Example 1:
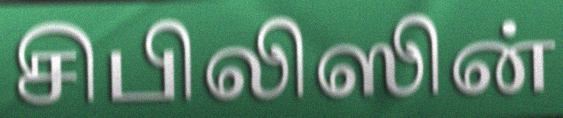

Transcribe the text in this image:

சிபிலிஸின்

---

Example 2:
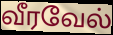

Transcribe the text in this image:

வீரவேல்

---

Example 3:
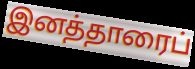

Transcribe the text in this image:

இனத்தாரைப்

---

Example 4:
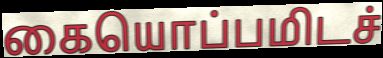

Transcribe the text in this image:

கையொப்பமிடச்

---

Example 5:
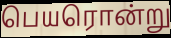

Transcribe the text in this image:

பெயரொன்று